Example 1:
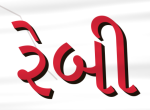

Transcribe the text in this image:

રેબી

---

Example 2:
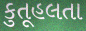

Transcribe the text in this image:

કુતૂહલતા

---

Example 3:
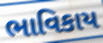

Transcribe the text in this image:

ભાવિકાય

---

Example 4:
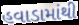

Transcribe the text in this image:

હવાડામાંથી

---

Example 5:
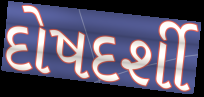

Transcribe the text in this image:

દોષદર્શી